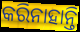
କରିନାହାନ୍ତି